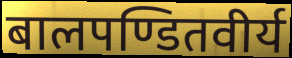
बालपण्डितवीर्य